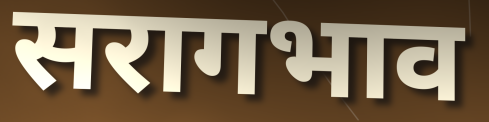
सरागभाव